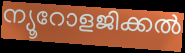
ന്യൂറോളജിക്കൽ